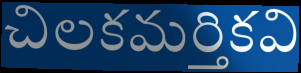
చిలకమర్తికవి